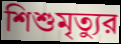
শিশুমৃত্যুর